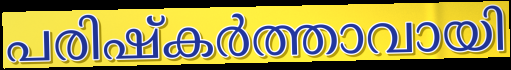
പരിഷ്കർത്താവായി